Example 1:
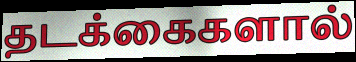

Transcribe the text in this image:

தடக்கைகளால்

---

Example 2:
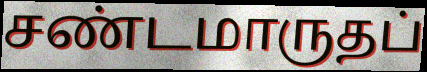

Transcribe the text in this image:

சண்டமாருதப்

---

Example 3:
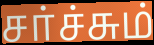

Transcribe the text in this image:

சர்ச்சும்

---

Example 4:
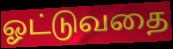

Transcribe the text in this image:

ஓட்டுவதை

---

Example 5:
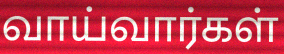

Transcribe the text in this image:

வாய்வார்கள்